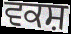
ਵਕਸ਼